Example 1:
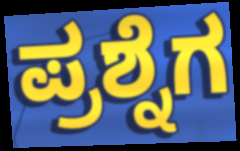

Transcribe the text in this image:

ಪ್ರಶ್ನೆಗ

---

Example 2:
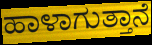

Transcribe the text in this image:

ಹಾಳಾಗುತ್ತಾನೆ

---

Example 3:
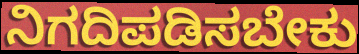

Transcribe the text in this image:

ನಿಗದಿಪಡಿಸಬೇಕು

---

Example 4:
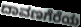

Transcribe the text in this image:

ದಾವಣಗೆರೆಯ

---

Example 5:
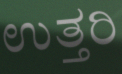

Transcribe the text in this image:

ಉತ್ತರಿ